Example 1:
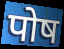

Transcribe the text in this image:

पोष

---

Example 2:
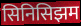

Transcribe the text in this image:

सिनिसिझम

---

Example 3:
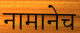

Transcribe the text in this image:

नामानेच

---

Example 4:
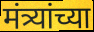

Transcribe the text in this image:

मंत्र्यांच्या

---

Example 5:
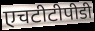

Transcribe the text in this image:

एचटीटीपीडी